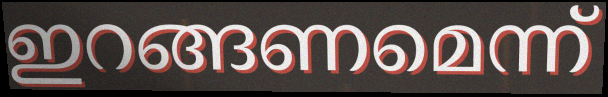
ഇറങ്ങണമെന്ന്